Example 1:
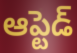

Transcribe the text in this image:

ఆప్టెడ్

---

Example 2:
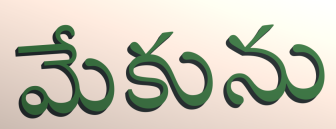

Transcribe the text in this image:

మేకును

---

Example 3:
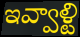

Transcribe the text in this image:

ఇవ్వాళ్టి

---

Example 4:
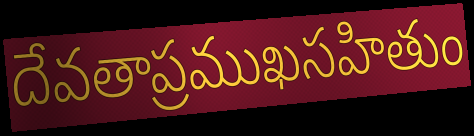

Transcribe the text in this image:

దేవతాప్రముఖసహితుం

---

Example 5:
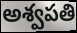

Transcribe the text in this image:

అశ్వపతి